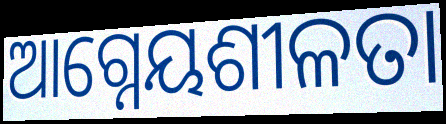
ଆଗ୍ନେୟଶୀଳତା